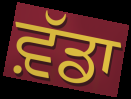
ਵ਼ੱਡਾ